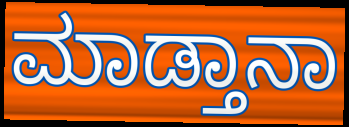
ಮಾಡ್ತಾನಾ